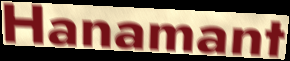
Hanamant